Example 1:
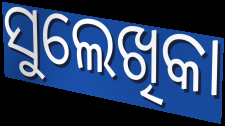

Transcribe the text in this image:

ସୁଲେଖିକା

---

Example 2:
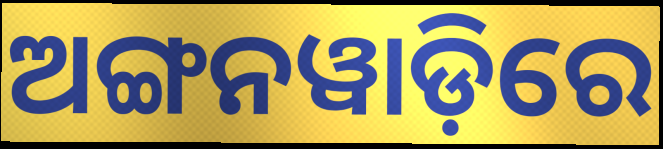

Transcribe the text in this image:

ଅଙ୍ଗନୱାଡ଼ିରେ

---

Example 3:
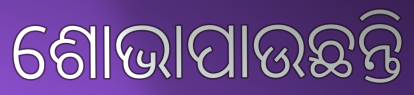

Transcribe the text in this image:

ଶୋଭାପାଉଛନ୍ତି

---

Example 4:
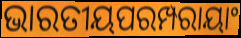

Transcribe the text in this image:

ଭାରତୀୟପରମ୍ପରାୟାଂ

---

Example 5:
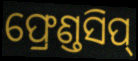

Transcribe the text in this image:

ଫ୍ରେଣ୍ଡସିପ୍